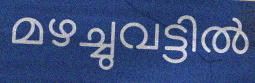
മഴച്ചുവട്ടിൽ